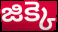
జిక్కె